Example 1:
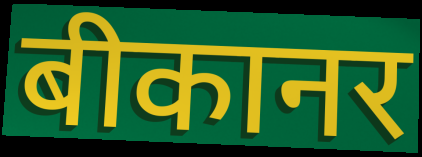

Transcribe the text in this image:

बीकानर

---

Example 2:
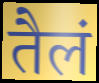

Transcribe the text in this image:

तैलं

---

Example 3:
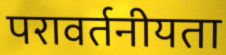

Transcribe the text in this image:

परावर्तनीयता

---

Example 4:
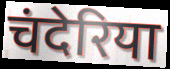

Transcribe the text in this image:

चंदेरिया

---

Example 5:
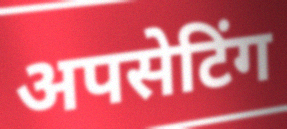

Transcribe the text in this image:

अपसेटिंग